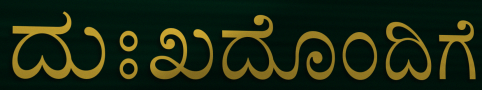
ದುಃಖದೊಂದಿಗೆ